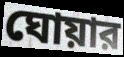
ঘোয়ার